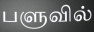
பளுவில்